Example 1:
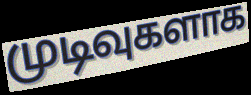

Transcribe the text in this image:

முடிவுகளாக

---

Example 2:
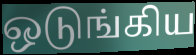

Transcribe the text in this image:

ஒடுங்கிய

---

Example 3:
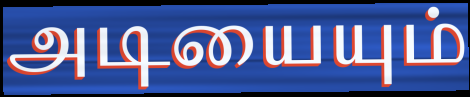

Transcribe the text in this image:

அடியையும்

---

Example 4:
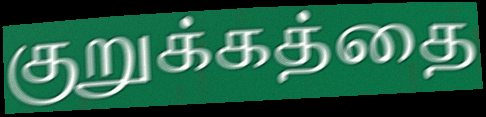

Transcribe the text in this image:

குறுக்கத்தை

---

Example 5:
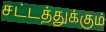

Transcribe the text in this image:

சட்டத்துக்கும்